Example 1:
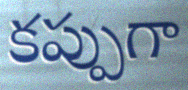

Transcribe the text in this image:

కప్పుగా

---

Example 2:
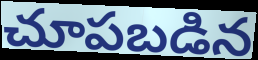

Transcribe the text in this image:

చూపబడిన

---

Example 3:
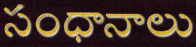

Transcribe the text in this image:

సంధానాలు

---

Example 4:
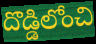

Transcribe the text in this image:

దొడ్డిలోంచి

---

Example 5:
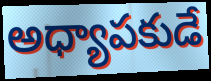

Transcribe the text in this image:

అధ్యాపకుడే